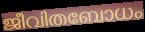
ജീവിതബോധം